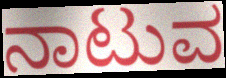
ನಾಟುವ